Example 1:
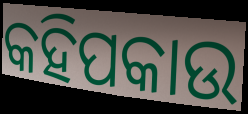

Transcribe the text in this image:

କହିପକାଉ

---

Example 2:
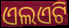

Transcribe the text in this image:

ଏଲଏଟି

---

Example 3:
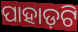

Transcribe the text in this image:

ପାହାଡ଼ଟି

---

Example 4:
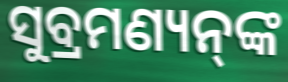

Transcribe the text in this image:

ସୁବ୍ରମଣ୍ୟନ୍‌ଙ୍କ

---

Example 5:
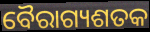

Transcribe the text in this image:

ବୈରାଗ୍ୟଶତକ